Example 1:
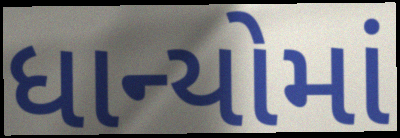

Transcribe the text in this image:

ધાન્યોમાં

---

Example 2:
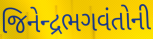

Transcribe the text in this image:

જિનેન્દ્રભગવંતોની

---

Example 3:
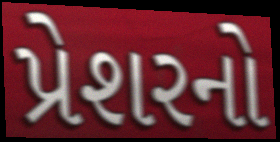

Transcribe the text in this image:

પ્રેશરનો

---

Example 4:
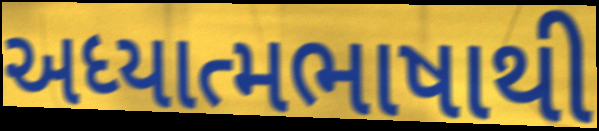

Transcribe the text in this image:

અધ્યાત્મભાષાથી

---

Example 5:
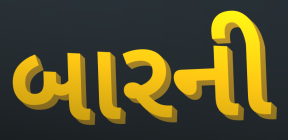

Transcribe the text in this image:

બારની